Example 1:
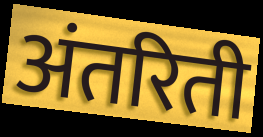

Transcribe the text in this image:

अंतरिती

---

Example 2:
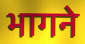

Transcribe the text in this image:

भागने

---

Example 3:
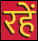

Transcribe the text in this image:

रहें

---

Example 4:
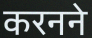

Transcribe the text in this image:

करनने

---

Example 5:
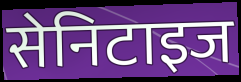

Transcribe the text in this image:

सेनिटाइज